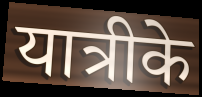
यात्रीके